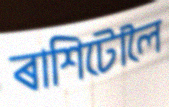
ৰাশিটোলৈ